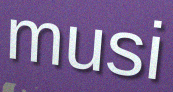
musi